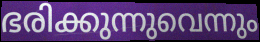
ഭരിക്കുന്നുവെന്നും